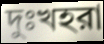
দুঃখহরা